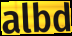
albd